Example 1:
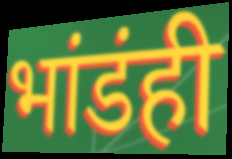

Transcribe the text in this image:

भांडंही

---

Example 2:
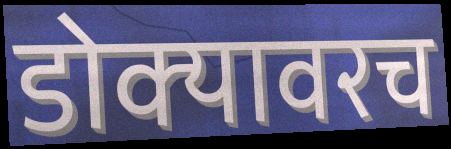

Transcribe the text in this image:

डोक्यावरच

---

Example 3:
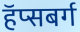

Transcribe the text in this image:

हॅप्सबर्ग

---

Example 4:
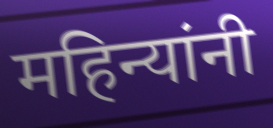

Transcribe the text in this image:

महिन्यांनी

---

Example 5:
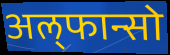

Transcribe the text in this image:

अल्फान्सो